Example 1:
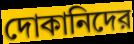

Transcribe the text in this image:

দোকানিদের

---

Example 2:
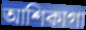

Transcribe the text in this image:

আশিকাগা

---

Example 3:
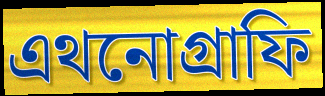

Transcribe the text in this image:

এথনোগ্রাফি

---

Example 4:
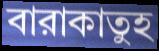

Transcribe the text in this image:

বারাকাতুহ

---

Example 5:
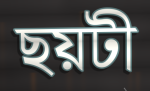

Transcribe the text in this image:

ছয়টী